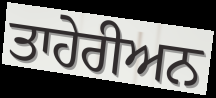
ਤਾਹੇਰੀਅਨ